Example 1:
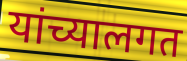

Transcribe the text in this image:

यांच्यालगत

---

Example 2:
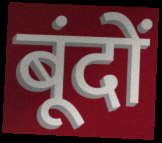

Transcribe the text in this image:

बूंदों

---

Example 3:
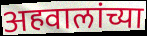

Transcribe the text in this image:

अहवालांच्या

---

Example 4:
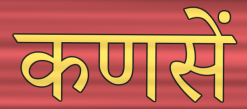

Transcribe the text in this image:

कणसें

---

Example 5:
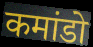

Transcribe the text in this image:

कमांडो